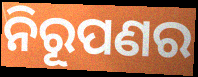
ନିରୂପଣର